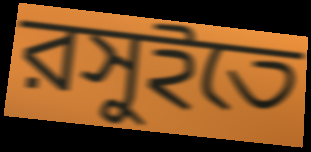
রসুইতে